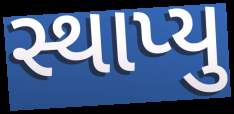
સ્થાપ્યુ